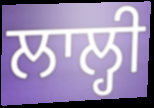
ਲਾਲ੍ਹੀ